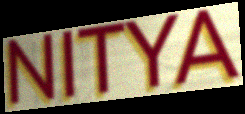
NITYA